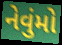
નેવુંમો